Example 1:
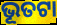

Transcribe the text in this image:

ଭୂତଟା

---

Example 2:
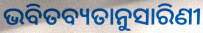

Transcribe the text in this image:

ଭବିତବ୍ୟତାନୁସାରିଣୀ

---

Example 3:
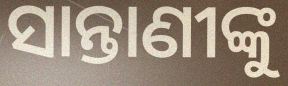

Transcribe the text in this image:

ସାନ୍ତାଣୀଙ୍କୁ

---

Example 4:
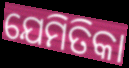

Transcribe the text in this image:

ଯେମିତିକା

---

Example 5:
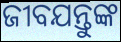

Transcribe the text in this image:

ଜୀବଯନ୍ତୁଙ୍କ